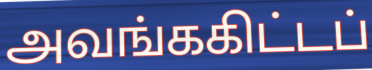
அவங்ககிட்டப்